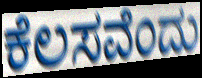
ಕೆಲಸವೆಂದು